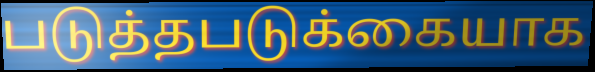
படுத்தபடுக்கையாக